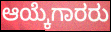
ಆಯ್ಕೆಗಾರರು